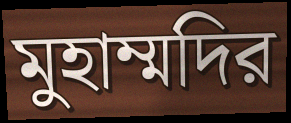
মুহাম্মদির